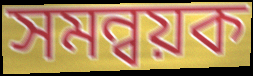
সমন্বয়ক